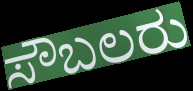
ಸೌಬಲರು